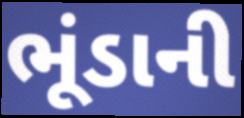
ભૂંડાની